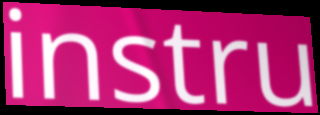
instru